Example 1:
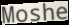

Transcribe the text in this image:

Moshe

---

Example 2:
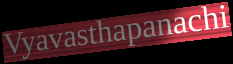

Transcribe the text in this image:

Vyavasthapanachi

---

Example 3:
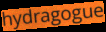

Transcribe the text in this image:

hydragogue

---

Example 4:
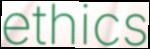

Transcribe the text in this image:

ethics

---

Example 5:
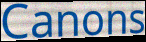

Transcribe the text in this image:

Canons